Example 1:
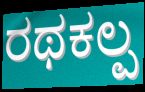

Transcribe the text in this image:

ರಥಕಲ್ಪ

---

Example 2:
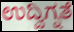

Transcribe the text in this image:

ಉದ್ವಿಗ್ನತೆ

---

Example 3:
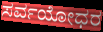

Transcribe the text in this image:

ಸರ್ವಯೋಧರ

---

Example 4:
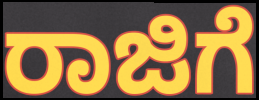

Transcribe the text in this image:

ರಾಜಿಗೆ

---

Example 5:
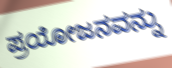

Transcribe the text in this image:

ಪ್ರಯೋಜನವನ್ನು